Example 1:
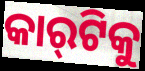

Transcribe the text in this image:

କାର୍‍ଟିକୁ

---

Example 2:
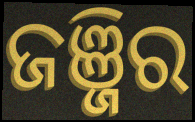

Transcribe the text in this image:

ଜଞ୍ଜିର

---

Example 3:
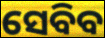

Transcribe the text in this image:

ସେବିବ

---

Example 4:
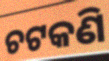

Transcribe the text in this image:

ଚଟକଣି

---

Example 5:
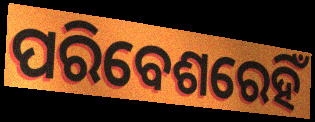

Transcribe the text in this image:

ପରିବେଶରେହିଁ